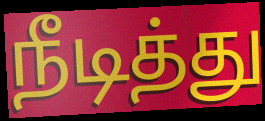
நீடித்து